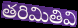
తరిమితివి